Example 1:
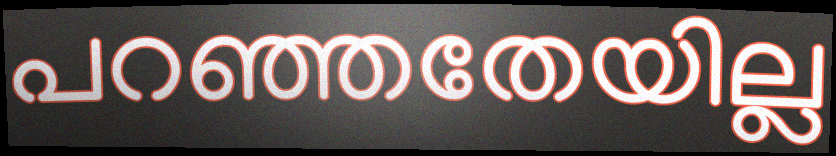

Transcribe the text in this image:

പറഞ്ഞതേയില്ല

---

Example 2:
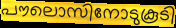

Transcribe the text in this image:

പൗലൊസിനോടുകൂടി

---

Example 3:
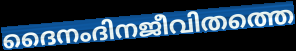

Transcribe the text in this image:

ദൈനംദിനജീവിതത്തെ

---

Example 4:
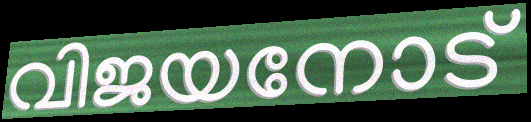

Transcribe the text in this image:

വിജയനോട്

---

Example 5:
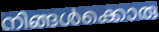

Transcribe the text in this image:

നിങ്ങൾക്കൊരു